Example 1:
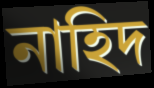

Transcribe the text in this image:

নাহিদ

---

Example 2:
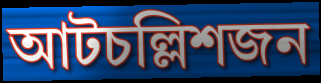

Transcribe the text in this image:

আটচল্লিশজন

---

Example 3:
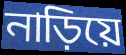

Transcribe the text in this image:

নাড়িয়ে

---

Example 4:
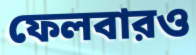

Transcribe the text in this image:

ফেলবারও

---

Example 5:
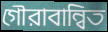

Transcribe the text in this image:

গৌরাবান্বিত